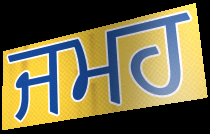
ਜਮਹ